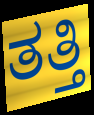
ತತ್ತಿ